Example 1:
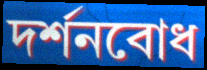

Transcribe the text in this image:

দর্শনবোধ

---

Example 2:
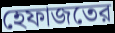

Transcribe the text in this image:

হেফাজতের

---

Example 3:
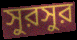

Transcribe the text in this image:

সুরসুর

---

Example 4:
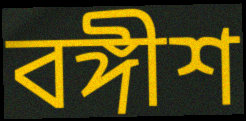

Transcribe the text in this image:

বঙ্গীশ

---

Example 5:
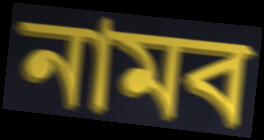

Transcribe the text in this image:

নামব